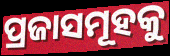
ପ୍ରଜାସମୂହକୁ